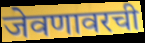
जेवणावरची